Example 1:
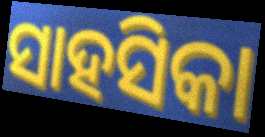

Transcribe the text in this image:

ସାହସିକା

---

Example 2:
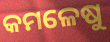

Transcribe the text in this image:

କମଳେଷୁ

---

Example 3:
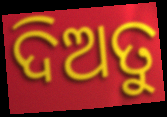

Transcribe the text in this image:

ଦିଅତୁ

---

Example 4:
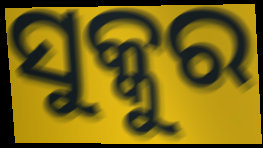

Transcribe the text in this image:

ସୁକ୍କୁର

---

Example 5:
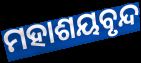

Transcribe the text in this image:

ମହାଶୟବୃନ୍ଦ